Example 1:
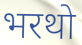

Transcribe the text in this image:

भरथो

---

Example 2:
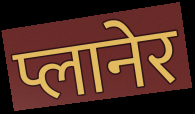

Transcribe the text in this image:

प्लानेर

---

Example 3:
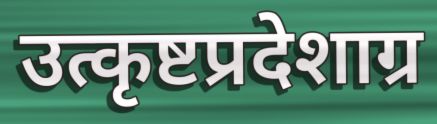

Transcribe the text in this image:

उत्कृष्टप्रदेशाग्र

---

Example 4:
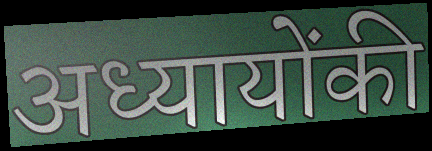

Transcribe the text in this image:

अध्यायोंकी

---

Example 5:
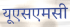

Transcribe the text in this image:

यूएसएमसी